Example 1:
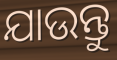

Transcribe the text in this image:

ଯାଉନ୍ତୁ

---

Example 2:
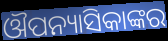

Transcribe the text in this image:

ଔପନ୍ୟାସିକାଙ୍କର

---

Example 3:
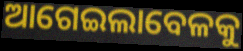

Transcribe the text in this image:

ଆଗେଇଲାବେଳକୁ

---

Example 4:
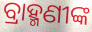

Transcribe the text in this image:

ବ୍ରାହ୍ମଣୀଙ୍କ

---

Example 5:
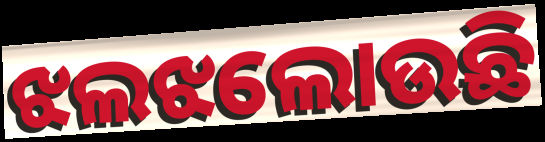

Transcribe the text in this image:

ଝଲଝଲୋଉଛି